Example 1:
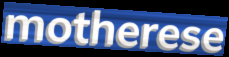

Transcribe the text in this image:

motherese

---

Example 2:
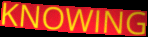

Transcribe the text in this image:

KNOWING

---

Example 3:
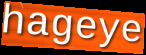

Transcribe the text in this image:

hageye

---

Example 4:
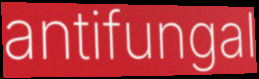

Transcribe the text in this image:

antifungal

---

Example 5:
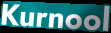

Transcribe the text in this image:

Kurnool